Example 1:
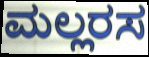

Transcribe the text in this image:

ಮಲ್ಲರಸ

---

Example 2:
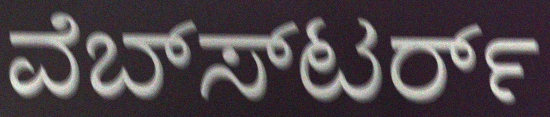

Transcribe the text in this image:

ವೆಬ್ಸ್‍ಟರ್ರ್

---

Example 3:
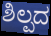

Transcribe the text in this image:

ಶಿಲ್ಪದ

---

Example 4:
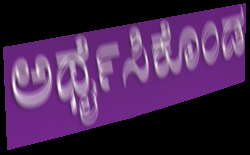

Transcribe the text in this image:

ಅರ್ಥೈಸಿಕೊಂಡ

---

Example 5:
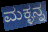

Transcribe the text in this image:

ಮಕ್ಳನ್ನ